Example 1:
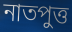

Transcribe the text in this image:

নাতপুত্ত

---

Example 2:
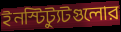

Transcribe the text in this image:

ইনস্টিট্যুটগুলোর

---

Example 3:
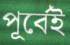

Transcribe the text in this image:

পূর্বেই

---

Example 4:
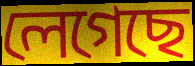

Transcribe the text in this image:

লেগেছে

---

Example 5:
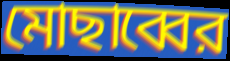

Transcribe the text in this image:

মোছাব্বের